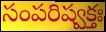
సంపరిష్వక్తః